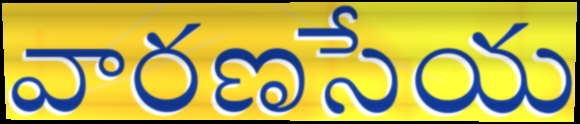
వారణసేయ